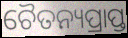
ଚୈତନ୍ୟପ୍ରାପ୍ତ